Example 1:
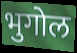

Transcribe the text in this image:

भुगोल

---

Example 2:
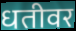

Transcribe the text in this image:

धतीवर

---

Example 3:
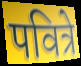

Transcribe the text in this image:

पवित्रे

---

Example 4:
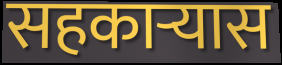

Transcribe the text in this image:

सहकार्‍यास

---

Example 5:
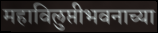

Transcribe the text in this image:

महाविलुप्तीभवनाच्या